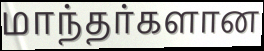
மாந்தர்களான